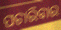
ପଚାରିବାର